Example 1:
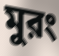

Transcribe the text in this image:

মুরং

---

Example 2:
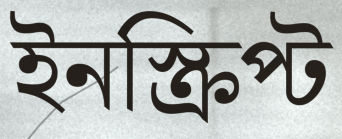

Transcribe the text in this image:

ইনস্ক্রিপ্ট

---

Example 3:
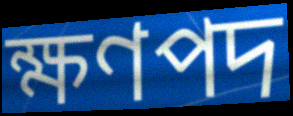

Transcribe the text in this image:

ক্ষণপদ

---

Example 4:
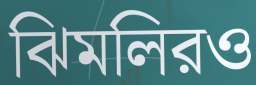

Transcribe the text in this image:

ঝিমলিরও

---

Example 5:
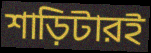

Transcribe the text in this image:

শাড়িটারই